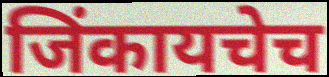
जिंकायचेच